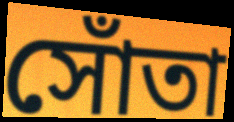
সোঁতা